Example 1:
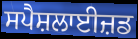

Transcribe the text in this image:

ਸਪੈਸ਼ਲਾਈਜ਼ਡ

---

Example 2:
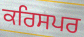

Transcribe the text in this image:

ਕਰਿਸਪਰ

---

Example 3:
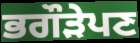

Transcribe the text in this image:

ਭਗੌੜੇਪਣ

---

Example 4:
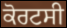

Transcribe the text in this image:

ਕੋਰਟਸੀ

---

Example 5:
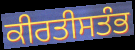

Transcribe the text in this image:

ਕੀਰਤੀਸਤੰਭ